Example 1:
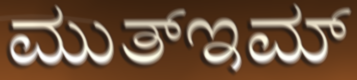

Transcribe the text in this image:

ಮುತ್ಇಮ್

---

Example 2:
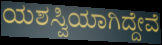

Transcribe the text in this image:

ಯಶಸ್ವಿಯಾಗಿದ್ದೇವೆ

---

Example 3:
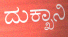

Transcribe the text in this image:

ದುಕ್ಖಾನಿ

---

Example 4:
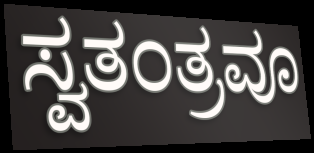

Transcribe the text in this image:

ಸ್ವತಂತ್ರವೂ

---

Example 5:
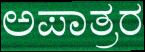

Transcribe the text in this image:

ಅಪಾತ್ರರ